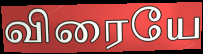
விரையே